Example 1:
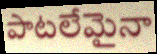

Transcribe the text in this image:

పాటలేమైనా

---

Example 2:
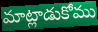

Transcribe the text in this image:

మాట్లాడుకోము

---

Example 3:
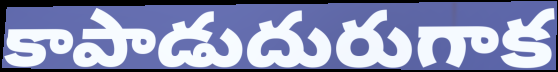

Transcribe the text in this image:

కాపాడుదురుగాక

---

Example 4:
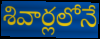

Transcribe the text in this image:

శివార్లలోనే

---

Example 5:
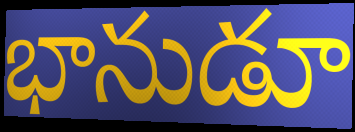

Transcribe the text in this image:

భానుడూ